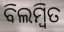
ବିଲମ୍ବିତ